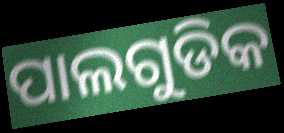
ପାଲଗୁଡିକ